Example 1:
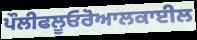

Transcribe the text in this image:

ਪੌਲੀਫਲੂਓਰੋਆਲਕਾਈਲ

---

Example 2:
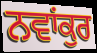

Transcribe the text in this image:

ਨਵਾਂਕੁਰ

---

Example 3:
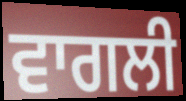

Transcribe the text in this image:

ਵਾਗਲੀ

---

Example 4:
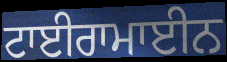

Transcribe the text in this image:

ਟਾਈਰਾਮਾਈਨ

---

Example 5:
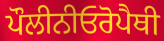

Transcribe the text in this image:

ਪੌਲੀਨੀਓਰੋਪੈਥੀ